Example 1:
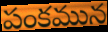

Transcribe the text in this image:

పంకమున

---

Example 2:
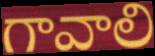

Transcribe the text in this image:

గావాలి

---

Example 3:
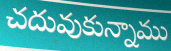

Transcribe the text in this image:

చదువుకున్నాము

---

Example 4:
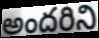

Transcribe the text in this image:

అందరిని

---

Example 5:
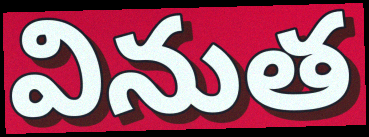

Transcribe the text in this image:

వినుత